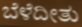
ಬೆಳೆದೀತು